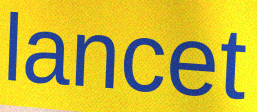
lancet